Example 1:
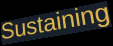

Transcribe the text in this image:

Sustaining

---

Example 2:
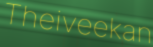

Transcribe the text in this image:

Theiveekan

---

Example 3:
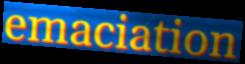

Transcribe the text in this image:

emaciation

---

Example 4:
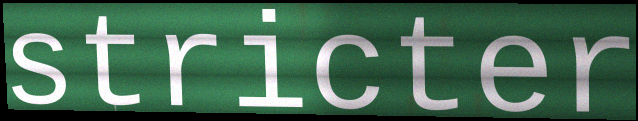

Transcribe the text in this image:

stricter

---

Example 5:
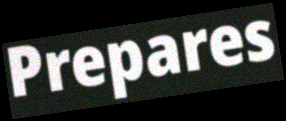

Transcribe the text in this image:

Prepares